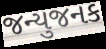
જન્યુજનક